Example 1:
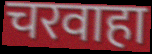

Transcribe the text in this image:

चरवाहा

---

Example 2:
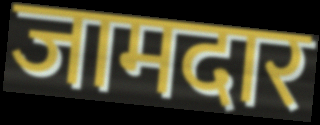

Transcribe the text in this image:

जामदार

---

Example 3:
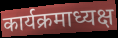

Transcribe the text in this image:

कार्यक्रमाध्यक्ष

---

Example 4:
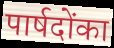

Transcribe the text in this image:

पार्षदोंका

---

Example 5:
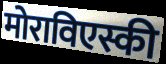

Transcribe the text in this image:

मोराविएस्की